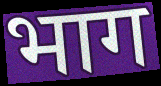
भाग